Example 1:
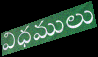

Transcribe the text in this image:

విధములు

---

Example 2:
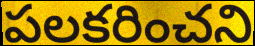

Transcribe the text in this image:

పలకరించని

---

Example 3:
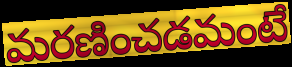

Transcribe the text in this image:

మరణించడమంటే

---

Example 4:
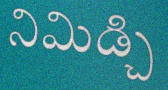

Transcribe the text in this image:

నిమిడ్చి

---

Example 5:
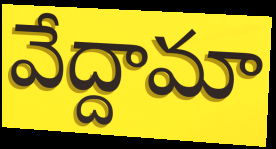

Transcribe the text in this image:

వేద్దామా